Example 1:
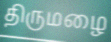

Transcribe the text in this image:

திருமழை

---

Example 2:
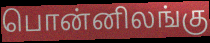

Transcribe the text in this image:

பொன்னிலங்கு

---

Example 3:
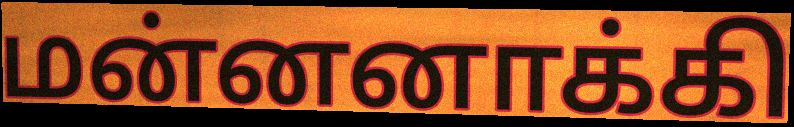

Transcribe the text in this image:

மன்னனாக்கி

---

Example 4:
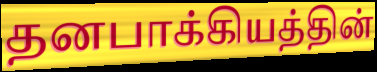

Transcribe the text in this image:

தனபாக்கியத்தின்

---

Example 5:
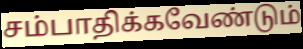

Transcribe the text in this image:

சம்பாதிக்கவேண்டும்